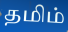
தமிம்